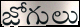
జోగులు